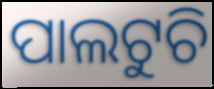
ପାଲଟୁଚି